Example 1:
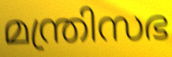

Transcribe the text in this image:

മന്ത്രിസഭ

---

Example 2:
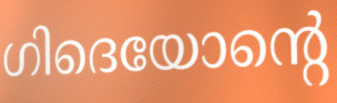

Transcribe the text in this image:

ഗിദെയോന്റെ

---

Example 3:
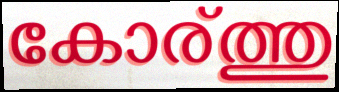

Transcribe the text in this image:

കോര്ത്തു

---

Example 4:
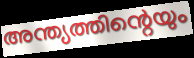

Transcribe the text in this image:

അന്ത്യത്തിന്റെയും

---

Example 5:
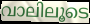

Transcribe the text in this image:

വാലിലൂടെ